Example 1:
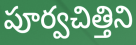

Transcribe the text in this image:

పూర్వచిత్తిని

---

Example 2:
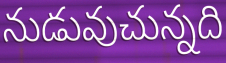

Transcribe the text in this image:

నుడువుచున్నది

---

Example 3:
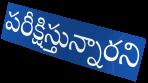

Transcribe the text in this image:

పరీక్షిస్తున్నారని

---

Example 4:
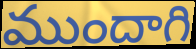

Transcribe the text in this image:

ముందాగి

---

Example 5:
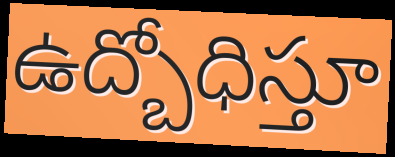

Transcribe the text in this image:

ఉద్బోధిస్తూ